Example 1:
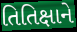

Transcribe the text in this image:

તિતિક્ષાને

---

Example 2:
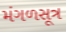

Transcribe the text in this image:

મંગળસૂત્ર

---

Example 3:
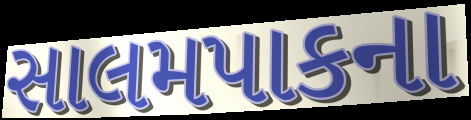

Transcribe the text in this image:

સાલમપાકના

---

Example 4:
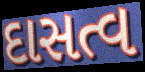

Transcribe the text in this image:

દાસત્વ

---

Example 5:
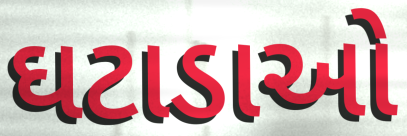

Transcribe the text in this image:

ઘટાડાઓ